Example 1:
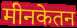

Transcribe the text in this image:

मीनकेतन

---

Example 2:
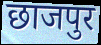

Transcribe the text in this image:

छाजपुर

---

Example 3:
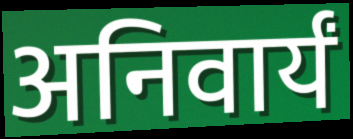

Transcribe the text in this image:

अनिवार्यं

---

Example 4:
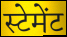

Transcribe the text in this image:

स्टेमेंट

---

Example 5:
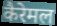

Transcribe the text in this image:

कैरेमल